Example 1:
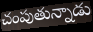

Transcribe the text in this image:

చంపుతున్నాడు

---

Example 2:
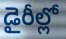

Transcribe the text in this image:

డైరీల్లో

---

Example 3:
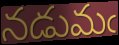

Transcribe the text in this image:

నడుమఁ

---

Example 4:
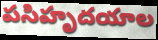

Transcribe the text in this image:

పసిహృదయాల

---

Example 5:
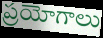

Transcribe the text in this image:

ప్రయోగాలు